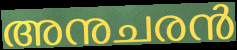
അനുചരൻ